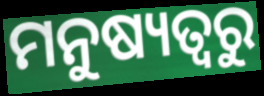
ମନୁଷ୍ୟତ୍ୱରୁ